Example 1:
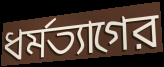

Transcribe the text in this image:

ধর্মত্যাগের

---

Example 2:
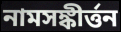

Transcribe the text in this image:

নামসঙ্কীর্ত্তন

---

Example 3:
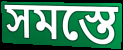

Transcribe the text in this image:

সমস্তে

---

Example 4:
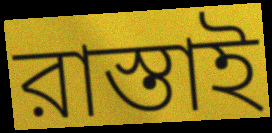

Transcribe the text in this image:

রাস্তাই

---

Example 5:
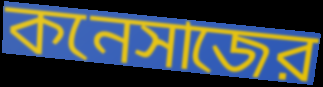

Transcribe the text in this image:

কনেসাজের